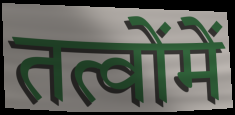
तत्वोंमें